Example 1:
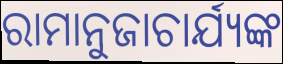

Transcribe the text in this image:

ରାମାନୁଜାଚାର୍ଯ୍ୟଙ୍କ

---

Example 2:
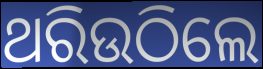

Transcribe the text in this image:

ଥରିଉଠିଲେ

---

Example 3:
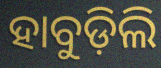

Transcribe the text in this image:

ହାବୁଡ଼ିଲି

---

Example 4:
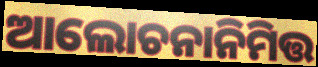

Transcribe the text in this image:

ଆଲୋଚନାନିମିତ୍ତ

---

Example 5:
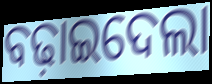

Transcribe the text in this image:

ବଢ଼ାଇଦେଲା